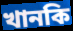
খানকি